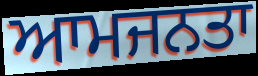
ਆਮਜਨਤਾ